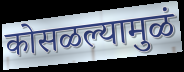
कोसळल्यामुळं